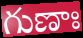
గుణాః